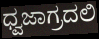
ಧ್ವಜಾಗ್ರದಲಿ